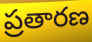
ప్రతారణ